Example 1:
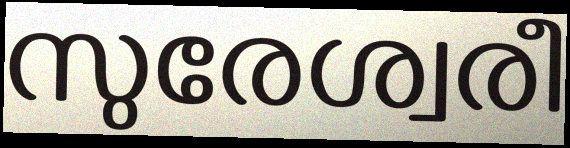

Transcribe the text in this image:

സുരേശ്വരീ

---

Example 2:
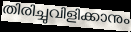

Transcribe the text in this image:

തിരിച്ചുവിളിക്കാനും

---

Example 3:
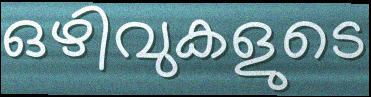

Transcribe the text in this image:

ഒഴിവുകളുടെ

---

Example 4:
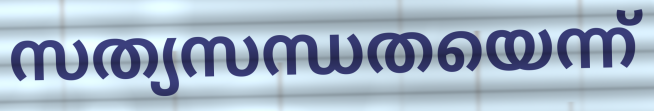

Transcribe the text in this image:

സത്യസന്ധതയെന്ന്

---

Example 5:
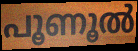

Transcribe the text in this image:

പൂണൂൽ